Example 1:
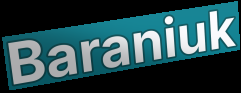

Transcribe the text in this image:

Baraniuk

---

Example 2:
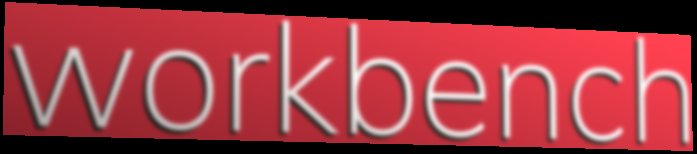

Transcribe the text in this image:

workbench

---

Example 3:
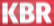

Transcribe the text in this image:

KBR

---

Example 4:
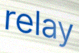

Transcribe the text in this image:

relay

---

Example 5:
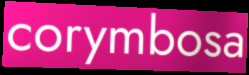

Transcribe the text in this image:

corymbosa